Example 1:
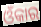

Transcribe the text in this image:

ଓଁକାର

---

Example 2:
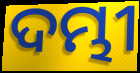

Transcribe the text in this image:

ଦମ୍ଭୀ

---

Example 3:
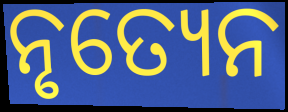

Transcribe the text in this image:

ନୃତ୍ୟେନ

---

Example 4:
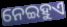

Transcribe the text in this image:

ନେଇହୁଏ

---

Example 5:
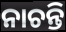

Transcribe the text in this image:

ନାଚନ୍ତି